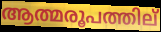
ആത്മരൂപത്തില്